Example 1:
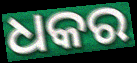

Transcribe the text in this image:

ଧକର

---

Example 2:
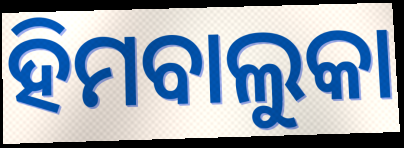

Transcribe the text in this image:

ହିମବାଲୁକା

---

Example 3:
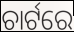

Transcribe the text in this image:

ଚାର୍ଟରେ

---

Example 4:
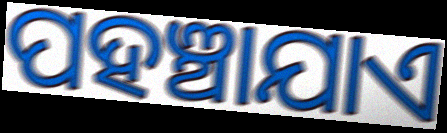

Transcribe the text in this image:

ପହଞ୍ଚାଯାଏ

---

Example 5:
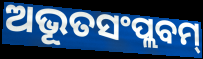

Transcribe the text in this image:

ଅଭୂତସଂପ୍ଲବମ୍